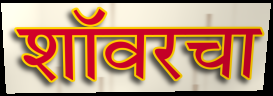
शॉवरचा